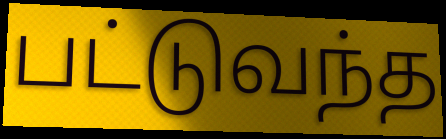
பட்டுவந்த